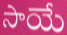
సాయే